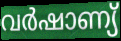
വർഷാണ്യ്